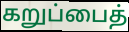
கறுப்பைத்